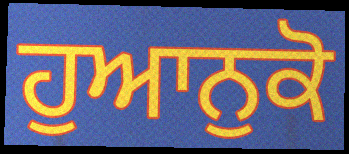
ਹੁਆਨੁਕੋ